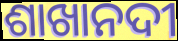
ଶାଖାନଦୀ